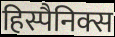
हिस्पैनिक्स